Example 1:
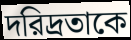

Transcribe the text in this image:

দরিদ্রতাকে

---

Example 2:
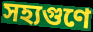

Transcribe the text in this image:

সহ্যগুণে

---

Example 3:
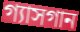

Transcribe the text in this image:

গ্যাসগান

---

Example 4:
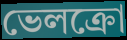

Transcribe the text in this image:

ভেলক্রো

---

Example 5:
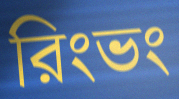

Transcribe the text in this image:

রিংভং